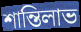
শান্তিলাভ